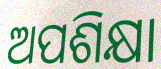
ଅପଶିକ୍ଷା